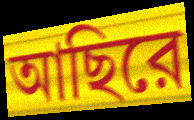
আছিরে